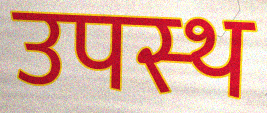
उपस्थ